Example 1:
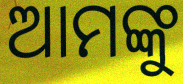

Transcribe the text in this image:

ଆମଙ୍କୁ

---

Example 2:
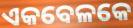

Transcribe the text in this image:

ଏକବେଳକେ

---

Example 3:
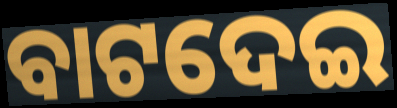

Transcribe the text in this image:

ବାଟଦେଇ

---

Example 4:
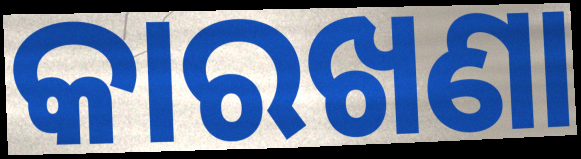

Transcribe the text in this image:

କାରଖଣା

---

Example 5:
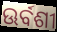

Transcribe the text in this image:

ଊର୍ବଶୀ